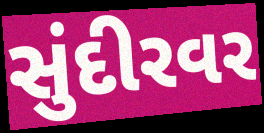
સુંદીરવર